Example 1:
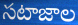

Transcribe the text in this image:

సటాజాల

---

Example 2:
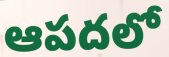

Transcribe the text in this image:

ఆపదలో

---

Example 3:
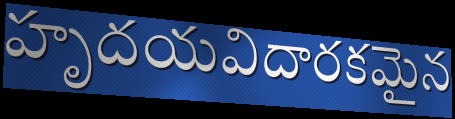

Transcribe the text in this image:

హృదయవిదారకమైన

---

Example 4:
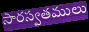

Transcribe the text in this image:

సారస్వతములు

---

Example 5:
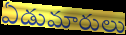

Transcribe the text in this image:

ఏడుమారులు